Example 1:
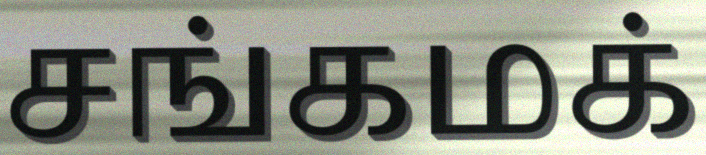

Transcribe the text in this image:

சங்கமக்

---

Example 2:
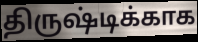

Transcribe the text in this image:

திருஷ்டிக்காக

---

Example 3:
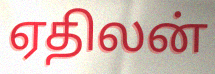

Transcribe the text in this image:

ஏதிலன்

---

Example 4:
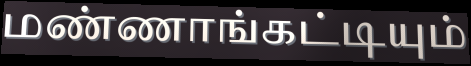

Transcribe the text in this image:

மண்ணாங்கட்டியும்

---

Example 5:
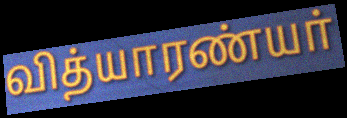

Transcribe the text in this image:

வித்யாரண்யர்